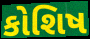
કોશિષ